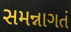
સમન્નાગતં